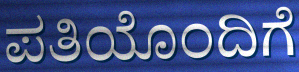
ಪತಿಯೊಂದಿಗೆ